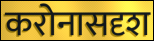
करोनासदृश